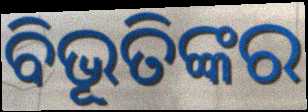
ବିଭୂତିଙ୍କର